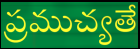
ప్రముచ్యతే